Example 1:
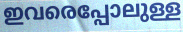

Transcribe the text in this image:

ഇവരെപ്പോലുള്ള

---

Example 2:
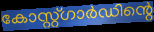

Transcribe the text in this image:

കോസ്റ്റ്ഗാർഡിന്റെ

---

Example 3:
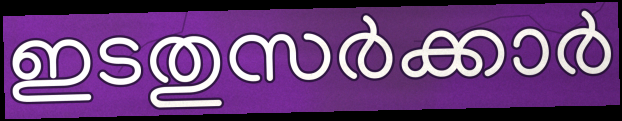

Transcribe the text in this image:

ഇടതുസർക്കാർ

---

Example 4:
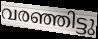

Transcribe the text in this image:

വരഞ്ഞിട്ടു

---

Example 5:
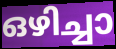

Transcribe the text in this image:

ഒഴിച്ചാ